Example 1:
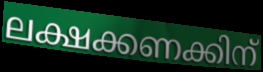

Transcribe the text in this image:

ലക്ഷക്കണക്കിന്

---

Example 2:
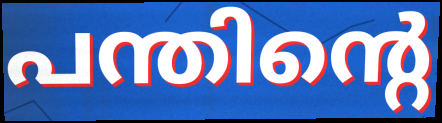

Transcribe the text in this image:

പന്തിന്റെ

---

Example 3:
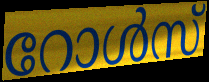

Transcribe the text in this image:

റോൾസ്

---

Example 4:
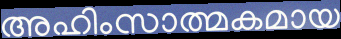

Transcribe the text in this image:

അഹിംസാത്മകമായ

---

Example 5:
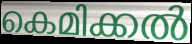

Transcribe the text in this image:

കെമിക്കൽ